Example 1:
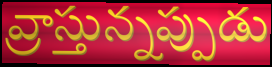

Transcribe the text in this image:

వ్రాస్తున్నప్పుడు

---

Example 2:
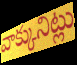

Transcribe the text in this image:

వాక్కునిట్లు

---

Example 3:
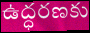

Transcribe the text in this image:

ఉద్ధరణకు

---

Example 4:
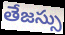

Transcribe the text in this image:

తేజస్సు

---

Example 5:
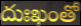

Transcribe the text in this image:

దుఃఖంతో